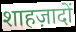
शाहज़ादों